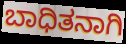
ಬಾಧಿತನಾಗಿ